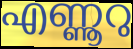
എണ്ണൂറു